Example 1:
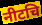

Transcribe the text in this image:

नीटचि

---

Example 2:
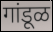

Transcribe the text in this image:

गांडूळ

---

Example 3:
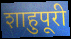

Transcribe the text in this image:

शाहुपूरी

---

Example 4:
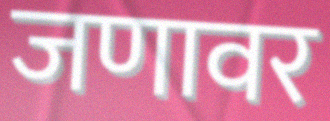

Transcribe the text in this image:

जणावर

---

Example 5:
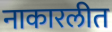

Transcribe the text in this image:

नाकारलीत